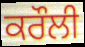
ਕਰੌਲੀ